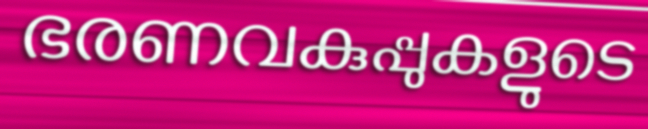
ഭരണവകുപ്പുകളുടെ